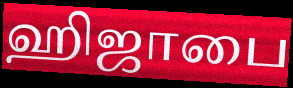
ஹிஜாபை